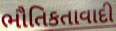
ભૌતિકતાવાદી